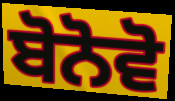
ਬੋਨੋਵੋ